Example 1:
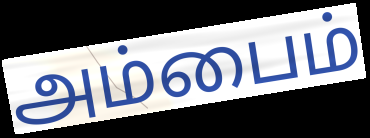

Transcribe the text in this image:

அம்பைம்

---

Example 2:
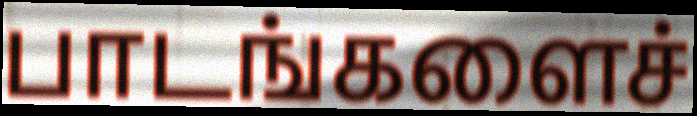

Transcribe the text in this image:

பாடங்களைச்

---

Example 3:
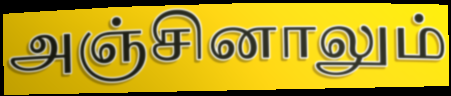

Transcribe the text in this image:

அஞ்சினாலும்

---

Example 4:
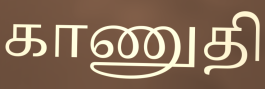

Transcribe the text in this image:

காணுதி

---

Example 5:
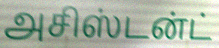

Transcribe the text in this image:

அசிஸ்டன்ட்